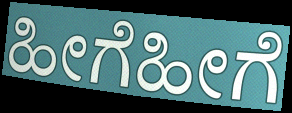
ಹೀಗೆಹೀಗೆ